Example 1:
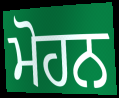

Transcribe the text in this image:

ਮੋਹਨ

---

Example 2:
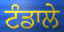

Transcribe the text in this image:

ਟੰਡਾਲੇ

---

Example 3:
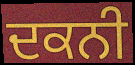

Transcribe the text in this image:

ਦਕਨੀ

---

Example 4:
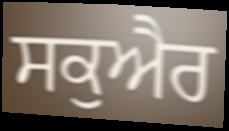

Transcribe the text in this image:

ਸਕੁਐਰ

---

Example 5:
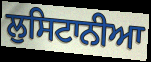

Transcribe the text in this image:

ਲੁਸਿਟਾਨੀਆ